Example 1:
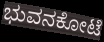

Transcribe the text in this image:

ಭುವನಕೋಟೆ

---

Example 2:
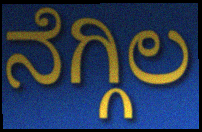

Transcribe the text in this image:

ನೆಗ್ಗಿಲ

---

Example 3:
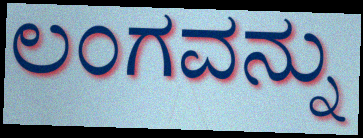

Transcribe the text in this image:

ಲಂಗವನ್ನು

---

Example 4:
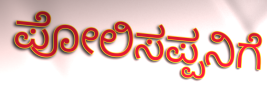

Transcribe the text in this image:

ಪೋಲಿಸಪ್ಪನಿಗೆ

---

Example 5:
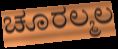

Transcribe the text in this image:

ಚೂರಲ್ಮಲ